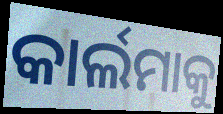
କାର୍ଲମାକୁ